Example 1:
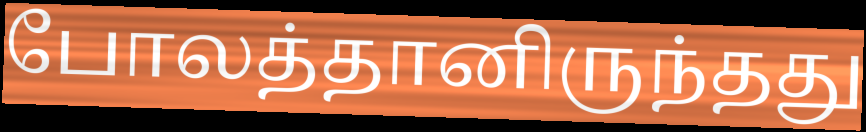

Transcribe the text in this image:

போலத்தானிருந்தது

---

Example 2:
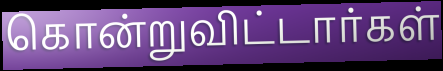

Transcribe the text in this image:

கொன்றுவிட்டார்கள்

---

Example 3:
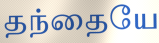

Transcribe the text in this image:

தந்தையே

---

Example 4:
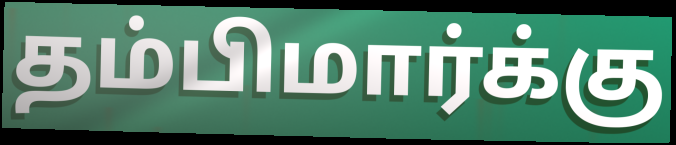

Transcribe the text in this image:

தம்பிமார்க்கு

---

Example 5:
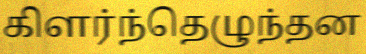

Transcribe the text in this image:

கிளர்ந்தெழுந்தன